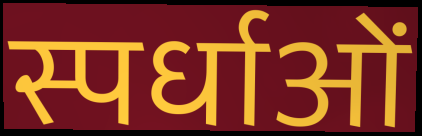
स्पर्धाओं